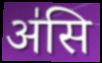
अ॑सि